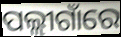
ପଲ୍ଲୀଗାଁରେ